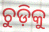
ଚୁଡ଼ିକୁ